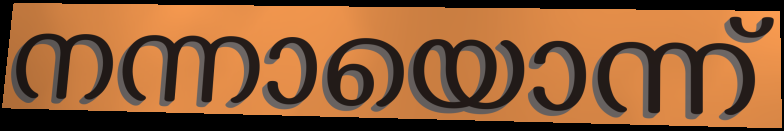
നന്നായൊന്ന്